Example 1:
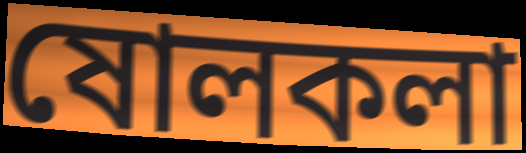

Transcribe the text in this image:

ষোলকলা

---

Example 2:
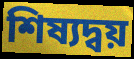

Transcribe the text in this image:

শিষ্যদ্বয়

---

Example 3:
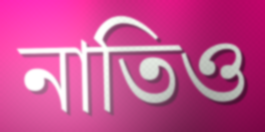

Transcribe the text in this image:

নাতিও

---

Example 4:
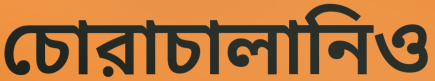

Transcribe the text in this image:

চোরাচালানিও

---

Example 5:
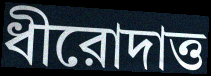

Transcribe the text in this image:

ধীরোদাত্ত